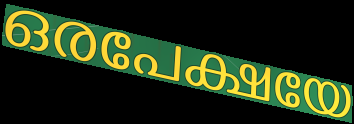
ഒരപേക്ഷയേ